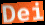
Dei